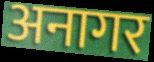
अनागर